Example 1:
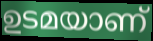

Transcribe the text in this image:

ഉടമയാണ്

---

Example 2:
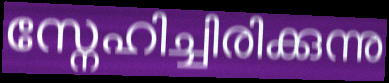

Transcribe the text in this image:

സ്നേഹിച്ചിരിക്കുന്നു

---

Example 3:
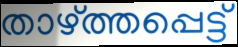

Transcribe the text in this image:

താഴ്ത്തപ്പെട്ട്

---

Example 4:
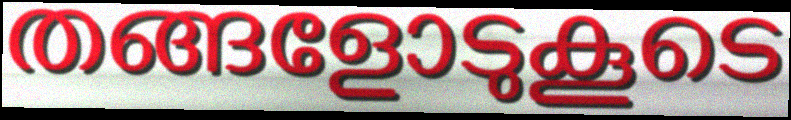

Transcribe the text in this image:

തങ്ങളോടുകൂടെ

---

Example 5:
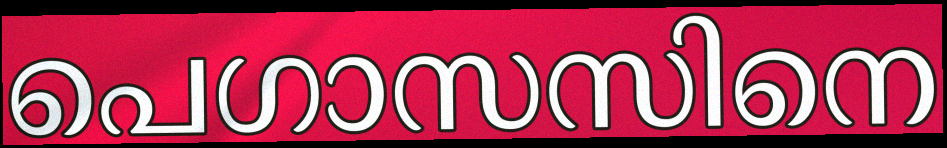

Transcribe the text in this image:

പെഗാസസിനെ